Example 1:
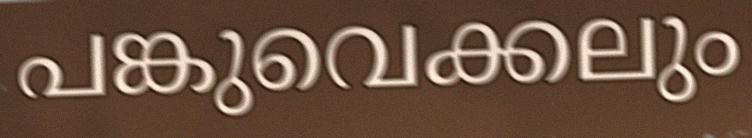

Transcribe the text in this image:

പങ്കുവെക്കലും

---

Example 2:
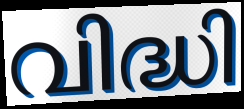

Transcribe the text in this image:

വിദ്ധി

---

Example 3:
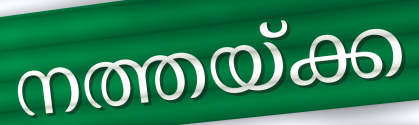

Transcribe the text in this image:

നത്തയ്ക്ക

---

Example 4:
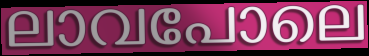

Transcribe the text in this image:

ലാവപോലെ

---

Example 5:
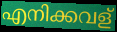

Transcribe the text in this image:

എനിക്കവള്